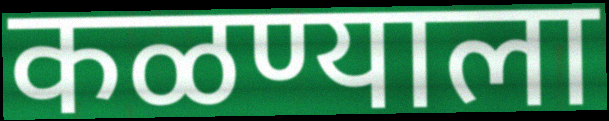
कळण्याला